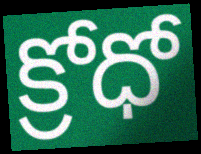
క్రోధో